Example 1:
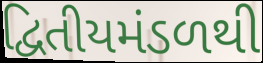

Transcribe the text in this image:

દ્વિતીયમંડળથી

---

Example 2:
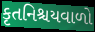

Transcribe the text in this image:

કૃતનિશ્ચયવાળો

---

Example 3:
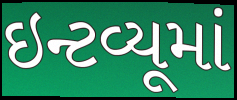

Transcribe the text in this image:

ઇન્ટવ્યૂમાં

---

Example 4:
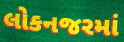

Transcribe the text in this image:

લોકનજરમાં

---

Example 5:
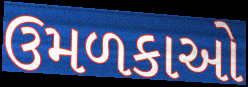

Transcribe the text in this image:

ઉમળકાઓ